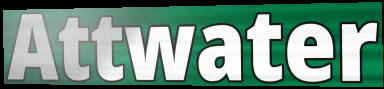
Attwater